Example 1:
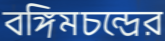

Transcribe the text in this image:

বঙ্গিমচন্দ্রের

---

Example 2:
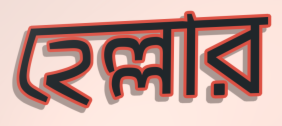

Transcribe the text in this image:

হেল্লার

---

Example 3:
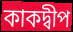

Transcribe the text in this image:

কাকদ্বীপ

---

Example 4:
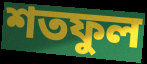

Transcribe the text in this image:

শতফুল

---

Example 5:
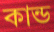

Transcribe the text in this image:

কান্ড